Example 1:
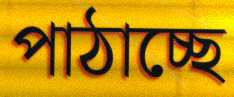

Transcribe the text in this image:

পাঠাচ্ছে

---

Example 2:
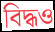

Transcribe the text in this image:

বিদ্ধও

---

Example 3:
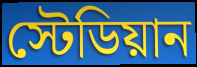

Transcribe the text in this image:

স্টেডিয়ান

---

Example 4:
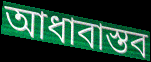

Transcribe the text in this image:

আধাবাস্তব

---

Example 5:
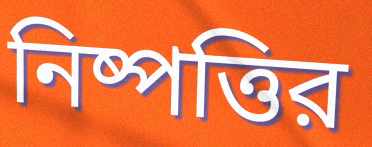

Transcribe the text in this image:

নিষ্পত্তির